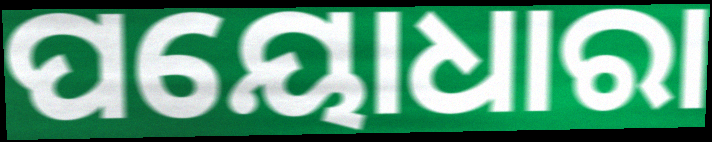
ପୟୋଧାରା